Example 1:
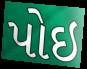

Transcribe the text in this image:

પોઇ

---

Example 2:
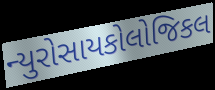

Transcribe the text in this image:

ન્યુરોસાયકોલોજિકલ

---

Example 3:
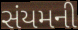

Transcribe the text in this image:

સંયમની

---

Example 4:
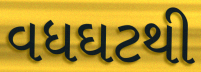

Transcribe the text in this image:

વધઘટથી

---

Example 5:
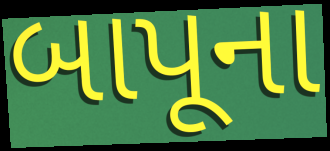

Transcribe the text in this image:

બાપૂના